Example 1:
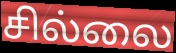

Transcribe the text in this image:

சில்லை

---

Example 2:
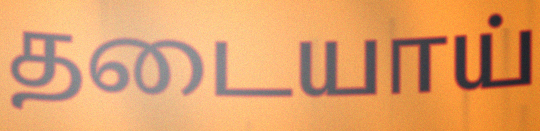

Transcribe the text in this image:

தடையாய்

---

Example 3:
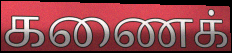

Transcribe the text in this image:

கணைக்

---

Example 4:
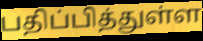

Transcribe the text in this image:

பதிப்பித்துள்ள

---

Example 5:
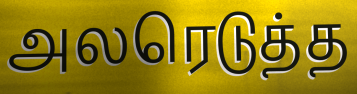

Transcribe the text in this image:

அலரெடுத்த